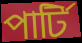
পার্টি